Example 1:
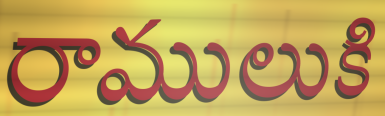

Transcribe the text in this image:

రాములుకి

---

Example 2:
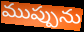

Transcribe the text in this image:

ముప్పును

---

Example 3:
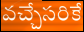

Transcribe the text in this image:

వచ్చేసరికే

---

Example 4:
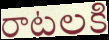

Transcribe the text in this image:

రాటలకి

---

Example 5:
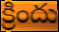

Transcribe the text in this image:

క్రిందు